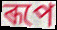
ৰূপে